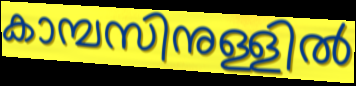
കാമ്പസിനുള്ളിൽ